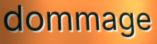
dommage